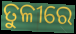
ତୁଳୀରେ